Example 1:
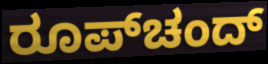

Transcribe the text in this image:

ರೂಪ್‌ಚಂದ್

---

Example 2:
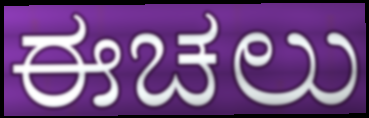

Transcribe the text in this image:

ಈಚಲು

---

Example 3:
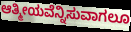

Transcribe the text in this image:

ಆತ್ಮೀಯವೆನ್ನಿಸುವಾಗಲೂ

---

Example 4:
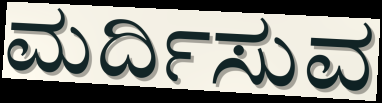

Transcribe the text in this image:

ಮರ್ದಿಸುವ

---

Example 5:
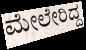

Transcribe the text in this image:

ಮೇಲೇರಿದ್ದ